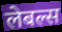
लेबल्स